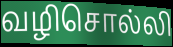
வழிசொல்லி